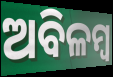
ଅବିଳମ୍ବ